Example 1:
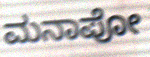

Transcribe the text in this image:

ಮನಾಪೋ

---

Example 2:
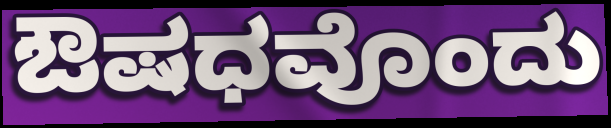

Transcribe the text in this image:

ಔಷಧವೊಂದು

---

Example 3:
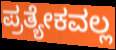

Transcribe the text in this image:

ಪ್ರತ್ಯೇಕವಲ್ಲ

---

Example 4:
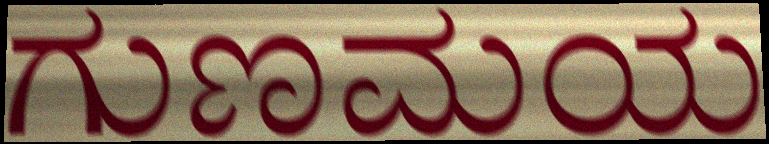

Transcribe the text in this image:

ಗುಣಮಯ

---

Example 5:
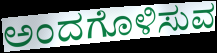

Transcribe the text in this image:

ಅಂದಗೊಳಿಸುವ